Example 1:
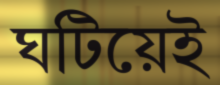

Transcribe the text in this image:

ঘটিয়েই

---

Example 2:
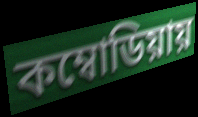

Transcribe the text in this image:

কম্বোডিয়ায়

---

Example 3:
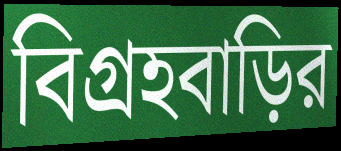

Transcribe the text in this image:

বিগ্রহবাড়ির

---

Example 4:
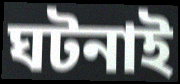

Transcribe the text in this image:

ঘটনাই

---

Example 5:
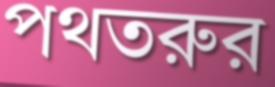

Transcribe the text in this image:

পথতরুর